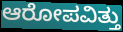
ಆರೋಪವಿತ್ತು